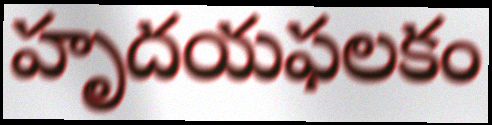
హృదయఫలకం